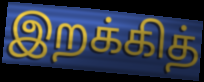
இறக்கித்